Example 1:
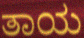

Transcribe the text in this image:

ತಾಯ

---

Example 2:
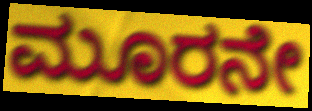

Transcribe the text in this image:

ಮೂರನೇ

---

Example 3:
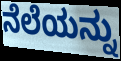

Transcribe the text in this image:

ನೆಲೆಯನ್ನು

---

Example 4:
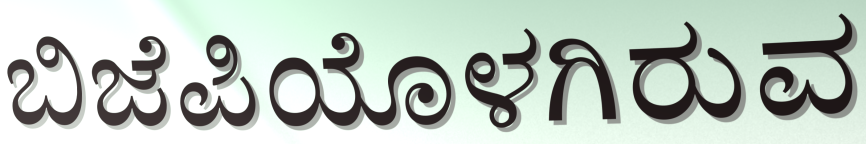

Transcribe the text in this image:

ಬಿಜೆಪಿಯೊಳಗಿರುವ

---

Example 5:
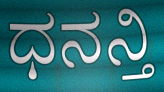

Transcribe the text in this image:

ಧನನ್ತಿ